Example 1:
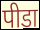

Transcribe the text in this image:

पीडा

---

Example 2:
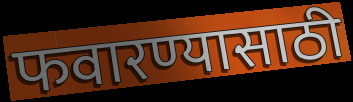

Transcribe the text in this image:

फवारण्यासाठी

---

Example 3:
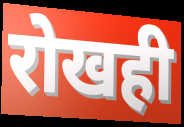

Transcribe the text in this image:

रोखही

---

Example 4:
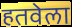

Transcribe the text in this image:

हतवेला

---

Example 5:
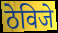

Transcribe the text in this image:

ठेविजे